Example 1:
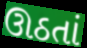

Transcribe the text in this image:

ઊઠતાં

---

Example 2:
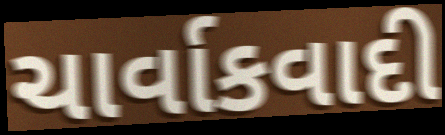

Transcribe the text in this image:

ચાર્વાકવાદી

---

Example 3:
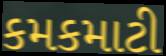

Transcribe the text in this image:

કમકમાટી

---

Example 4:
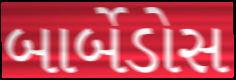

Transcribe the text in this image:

બાર્બેડોસ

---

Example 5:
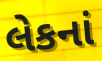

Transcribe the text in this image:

લેકનાં